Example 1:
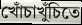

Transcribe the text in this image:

খোঁচাখুঁচিতে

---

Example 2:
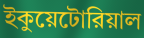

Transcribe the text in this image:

ইকুয়েটোরিয়াল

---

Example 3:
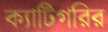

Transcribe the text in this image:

ক্যাটিগরির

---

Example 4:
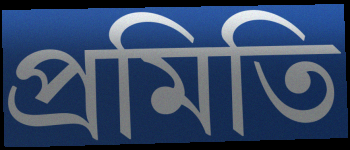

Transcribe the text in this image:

প্রমিতি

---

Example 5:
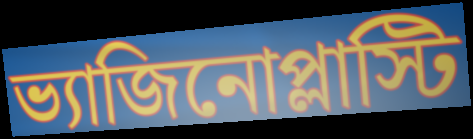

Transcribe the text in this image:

ভ্যাজিনোপ্লাস্টি